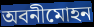
অবনীমোহন